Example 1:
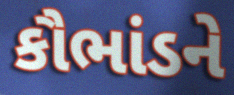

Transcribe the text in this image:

કૌભાંડને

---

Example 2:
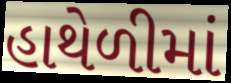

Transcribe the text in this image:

હાથેળીમાં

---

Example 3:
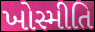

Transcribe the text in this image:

ખોસ્મીતિ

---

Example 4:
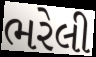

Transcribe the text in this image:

ભરેલી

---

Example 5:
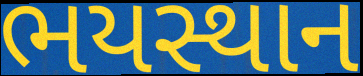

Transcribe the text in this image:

ભયસ્થાન